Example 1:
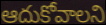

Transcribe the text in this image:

ఆదుకోవాలని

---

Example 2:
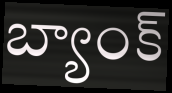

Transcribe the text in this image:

బ్యాంక్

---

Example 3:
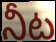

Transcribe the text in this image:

నీట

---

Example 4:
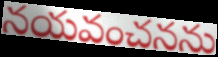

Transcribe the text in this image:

నయవంచనను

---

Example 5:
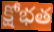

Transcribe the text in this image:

క్షోభత